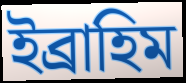
ইব্ৰাহিম